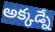
అక్కడ్నే